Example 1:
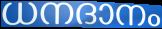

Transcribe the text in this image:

ധനദാനം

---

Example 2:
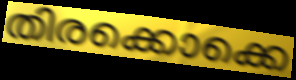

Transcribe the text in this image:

തിരക്കൊക്കെ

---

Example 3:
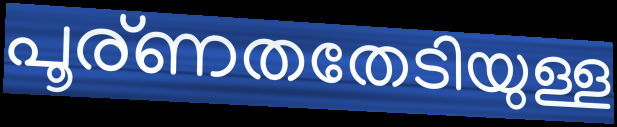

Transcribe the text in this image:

പൂര്ണതതേടിയുള്ള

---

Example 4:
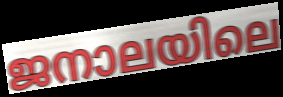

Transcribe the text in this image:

ജനാലയിലെ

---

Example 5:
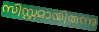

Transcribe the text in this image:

സിസ്റ്റമായിരുന്നു